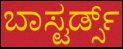
ಬಾಸ್ಟರ್ಡ್ಸ್